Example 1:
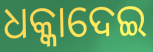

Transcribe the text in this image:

ଧକ୍କାଦେଇ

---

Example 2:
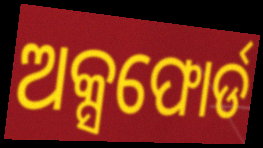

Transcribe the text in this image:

ଅକ୍ସଫୋର୍ଡ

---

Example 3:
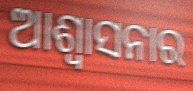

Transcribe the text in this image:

ଆଶ୍ୱାସନାର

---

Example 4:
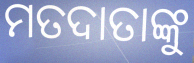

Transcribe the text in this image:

ମତଦାତାଙ୍କୁ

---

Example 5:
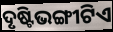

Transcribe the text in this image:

ଦୃଷ୍ଟିଭଙ୍ଗୀଟିଏ